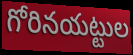
గోరినయట్టుల